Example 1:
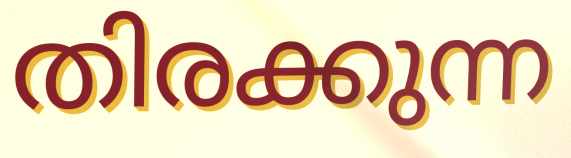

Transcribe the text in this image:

തിരക്കുന്ന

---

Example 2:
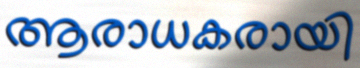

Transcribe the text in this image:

ആരാധകരായി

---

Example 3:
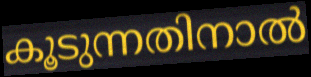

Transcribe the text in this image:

കൂടുന്നതിനാൽ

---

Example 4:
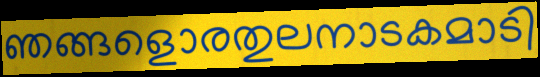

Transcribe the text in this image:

ഞങ്ങളൊരതുലനാടകമാടി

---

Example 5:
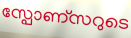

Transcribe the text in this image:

സ്പോണ്സറുടെ